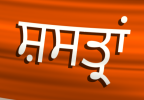
ਸ਼ਸਤ੍ਰਾਂ